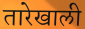
तारेखाली